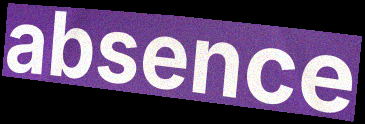
absence